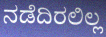
ನಡೆದಿರಲಿಲ್ಲ